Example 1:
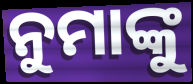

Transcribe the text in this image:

ନୁମାଙ୍କୁ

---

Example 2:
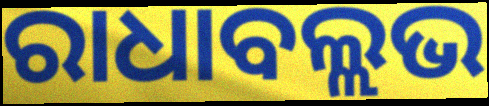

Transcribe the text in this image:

ରାଧାବଲ୍ଲଭ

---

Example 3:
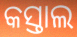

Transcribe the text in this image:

କସ୍ତାଲ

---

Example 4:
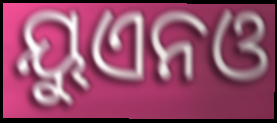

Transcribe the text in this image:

ୟୁଏନଓ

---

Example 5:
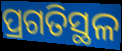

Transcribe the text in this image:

ପ୍ରଗତିସ୍ଥଳ